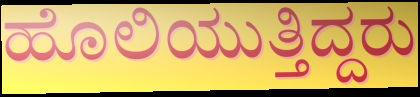
ಹೊಲಿಯುತ್ತಿದ್ದರು